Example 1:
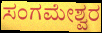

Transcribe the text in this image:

ಸಂಗಮೇಶ್ವರ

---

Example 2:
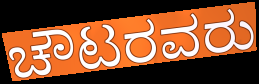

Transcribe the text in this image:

ಚೌಟರವರು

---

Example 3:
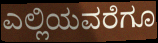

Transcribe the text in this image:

ಎಲ್ಲಿಯವರೆಗೂ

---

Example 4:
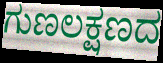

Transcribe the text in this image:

ಗುಣಲಕ್ಷಣದ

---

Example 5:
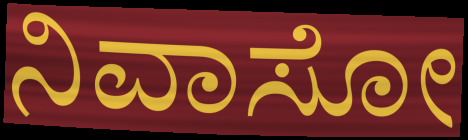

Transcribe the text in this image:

ನಿವಾಸೋ